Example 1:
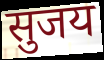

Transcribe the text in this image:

सुजय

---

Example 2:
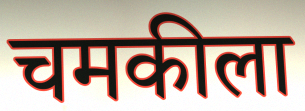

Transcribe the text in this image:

चमकीला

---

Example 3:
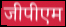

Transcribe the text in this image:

जीपीएम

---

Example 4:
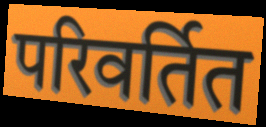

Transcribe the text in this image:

परिवर्तित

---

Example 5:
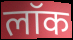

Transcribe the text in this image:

लॉक